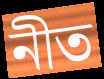
নীত